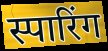
स्पारिंग